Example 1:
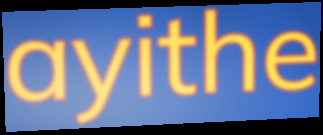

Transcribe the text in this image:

ayithe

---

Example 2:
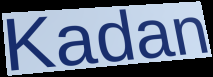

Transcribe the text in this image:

Kadan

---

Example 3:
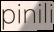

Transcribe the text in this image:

pinili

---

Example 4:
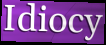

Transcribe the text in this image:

Idiocy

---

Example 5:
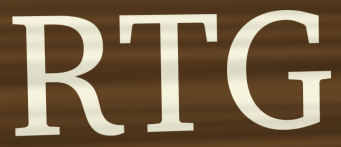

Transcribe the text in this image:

RTG